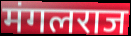
मंगलराज